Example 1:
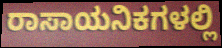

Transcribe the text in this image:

ರಾಸಾಯನಿಕಗಳಲ್ಲಿ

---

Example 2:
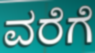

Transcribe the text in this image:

ವರೆಗೆ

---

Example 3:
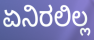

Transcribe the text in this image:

ಏನಿರಲಿಲ್ಲ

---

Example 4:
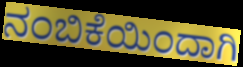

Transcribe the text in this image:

ನಂಬಿಕೆಯಿಂದಾಗಿ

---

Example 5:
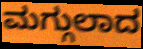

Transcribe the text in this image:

ಮಗ್ಗುಲಾದ